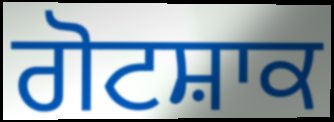
ਗੋਟਸ਼ਾਕ